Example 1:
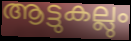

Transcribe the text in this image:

ആട്ടുകല്ലും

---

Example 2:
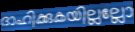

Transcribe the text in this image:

ദാഹിക്കുകയില്ലല്ലോ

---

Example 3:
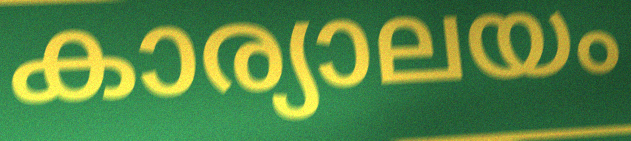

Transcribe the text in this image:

കാര്യാലയം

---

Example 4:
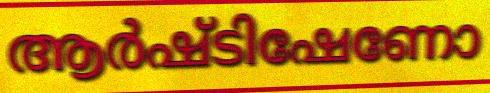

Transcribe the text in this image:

ആർഷ്ടിഷേണോ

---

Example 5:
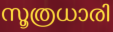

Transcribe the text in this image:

സൂത്രധാരി